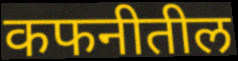
कफनीतील